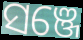
ସଞ୍ଜେ